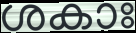
ശകാഃ